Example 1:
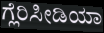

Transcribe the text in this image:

ಗ್ಲೆರಿಸೀಡಿಯಾ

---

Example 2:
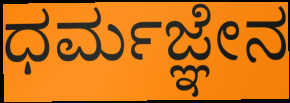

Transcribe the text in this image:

ಧರ್ಮಜ್ಞೇನ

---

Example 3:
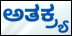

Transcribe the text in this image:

ಅತಕ್ರ್ಯ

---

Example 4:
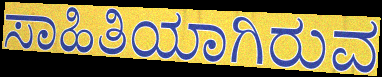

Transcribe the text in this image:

ಸಾಹಿತಿಯಾಗಿರುವ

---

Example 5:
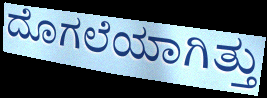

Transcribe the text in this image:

ದೊಗಲೆಯಾಗಿತ್ತು